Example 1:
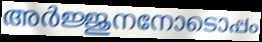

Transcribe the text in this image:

അർജ്ജുനനോടൊപ്പം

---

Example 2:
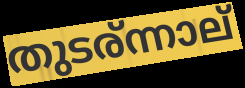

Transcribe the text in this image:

തുടര്ന്നാല്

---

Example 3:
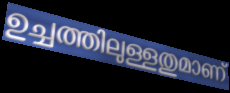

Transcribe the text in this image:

ഉച്ചത്തിലുള്ളതുമാണ്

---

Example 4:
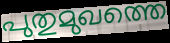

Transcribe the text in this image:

പുതുമുഖത്തെ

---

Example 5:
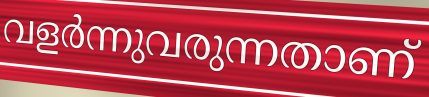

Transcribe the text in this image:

വളർന്നുവരുന്നതാണ്